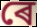
ৰে